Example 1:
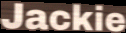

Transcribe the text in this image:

Jackie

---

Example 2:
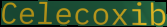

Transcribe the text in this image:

Celecoxib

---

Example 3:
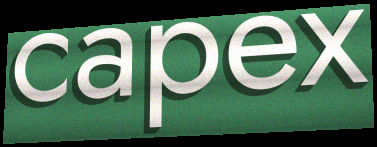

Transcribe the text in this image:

capex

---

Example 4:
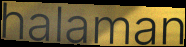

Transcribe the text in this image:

halaman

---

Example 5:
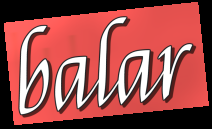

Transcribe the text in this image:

balar